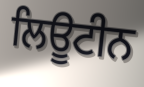
ਲਿਊਟੀਨ